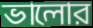
ভালোর